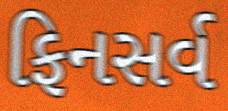
ફિનસર્વ